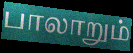
பாலாறும்